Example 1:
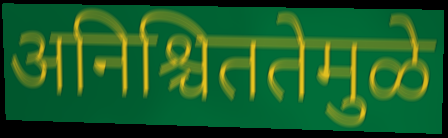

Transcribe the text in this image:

अनिश्चिततेमुळे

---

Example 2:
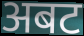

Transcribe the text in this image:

अबट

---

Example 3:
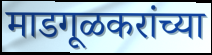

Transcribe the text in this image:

माडगूळकरांच्या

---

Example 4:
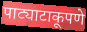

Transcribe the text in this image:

पाट्याटाकूपणे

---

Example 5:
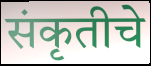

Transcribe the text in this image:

संकृतीचे